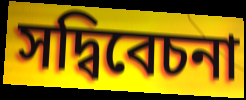
সদ্বিবেচনা